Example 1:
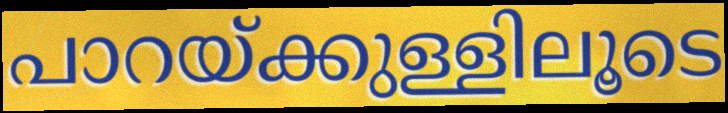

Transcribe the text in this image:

പാറയ്ക്കുള്ളിലൂടെ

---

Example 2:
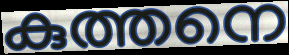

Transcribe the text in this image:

കുത്തനെ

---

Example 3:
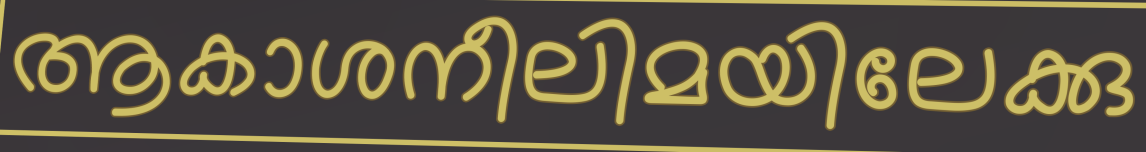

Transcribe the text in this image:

ആകാശനീലിമയിലേക്കു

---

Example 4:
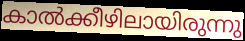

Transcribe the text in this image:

കാൽക്കീഴിലായിരുന്നു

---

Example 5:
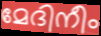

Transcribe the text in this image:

മേദിനീം